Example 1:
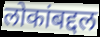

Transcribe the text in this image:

लोकांबद्दल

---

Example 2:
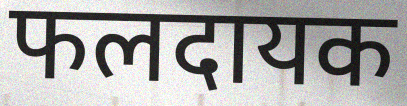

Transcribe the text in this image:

फलदायक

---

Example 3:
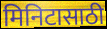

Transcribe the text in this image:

मिनिटासाठी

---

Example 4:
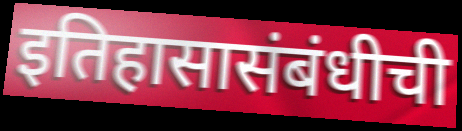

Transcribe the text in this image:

इतिहासासंबंधीची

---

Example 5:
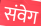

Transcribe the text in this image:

संवेग